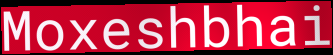
Moxeshbhai